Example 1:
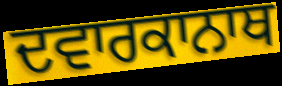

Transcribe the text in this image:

ਦਵਾਰਕਾਨਾਥ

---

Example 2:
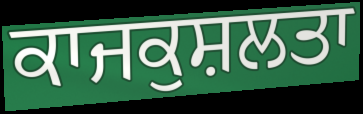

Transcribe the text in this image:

ਕਾਜਕੁਸ਼ਲਤਾ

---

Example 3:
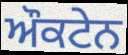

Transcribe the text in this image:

ਔਕਟੇਨ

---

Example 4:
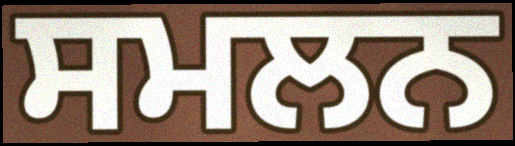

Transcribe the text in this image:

ਸਮਲਨ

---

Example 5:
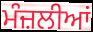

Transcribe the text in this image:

ਮੰਜ਼ਲੀਆਂ